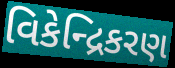
વિકેન્દ્રિકરણ